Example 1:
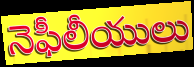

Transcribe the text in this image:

నెఫీలీయులు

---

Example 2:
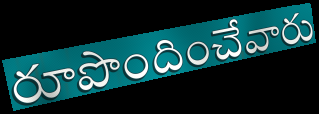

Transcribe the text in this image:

రూపొందించేవారు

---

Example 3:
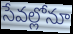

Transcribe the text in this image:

సేవల్లోనూ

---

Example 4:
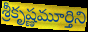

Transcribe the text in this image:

శ్రీకృష్ణమూర్తిని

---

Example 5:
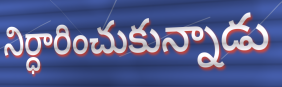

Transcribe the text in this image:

నిర్ధారించుకున్నాడు